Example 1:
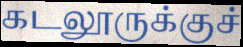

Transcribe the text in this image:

கடலூருக்குச்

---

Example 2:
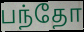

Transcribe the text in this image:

பந்தோ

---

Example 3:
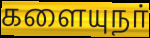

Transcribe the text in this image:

களையுநர்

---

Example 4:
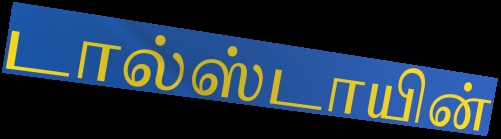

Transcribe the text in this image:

டால்ஸ்டாயின்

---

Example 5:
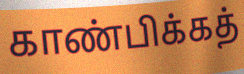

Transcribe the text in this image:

காண்பிக்கத்